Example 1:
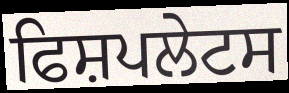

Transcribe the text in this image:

ਫਿਸ਼ਪਲੇਟਸ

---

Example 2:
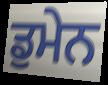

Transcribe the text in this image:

ਡੁਮੇਨ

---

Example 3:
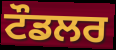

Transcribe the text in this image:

ਟੌਡਲਰ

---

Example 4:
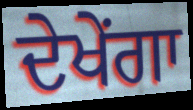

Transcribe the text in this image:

ਦੇਖੇਂਗਾ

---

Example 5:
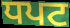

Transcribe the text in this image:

ਧਪਟ